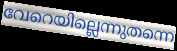
വേറെയില്ലെന്നുതന്നെ